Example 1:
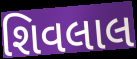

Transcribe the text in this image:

શિવલાલ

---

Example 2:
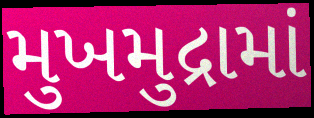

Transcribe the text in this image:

મુખમુદ્રામાં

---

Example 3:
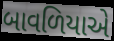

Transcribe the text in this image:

બાવળિયાએ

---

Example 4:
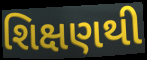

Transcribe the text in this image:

શિક્ષણથી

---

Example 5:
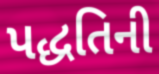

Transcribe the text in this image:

પદ્ધતિની